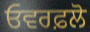
ਓਵਰਫ਼ਲੋ